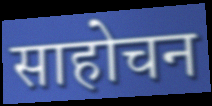
साहोचन